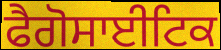
ਫੈਗੋਸਾਈਟਿਕ